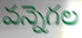
వన్నెగల